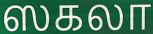
ஸகலா